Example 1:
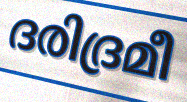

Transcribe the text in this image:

ദരിദ്രമീ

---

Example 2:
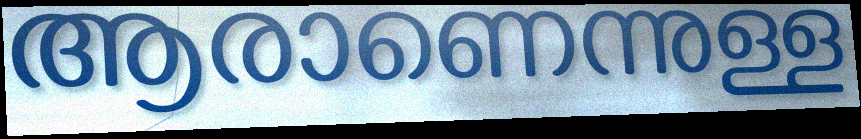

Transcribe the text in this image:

ആരാണെന്നുള്ള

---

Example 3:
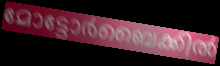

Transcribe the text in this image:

മോട്ടോർബൈക്കിൽ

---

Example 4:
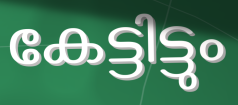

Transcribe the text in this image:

കേട്ടിട്ടും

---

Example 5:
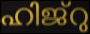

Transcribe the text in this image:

ഹിജ്റു